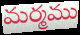
మర్మము